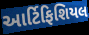
આર્ટિફિશિયલ